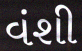
વંશી